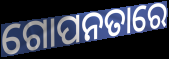
ଗୋପନତାରେ